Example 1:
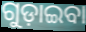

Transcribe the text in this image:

ଗୁଡ଼ାଇବା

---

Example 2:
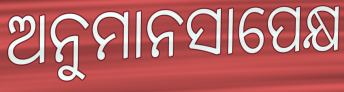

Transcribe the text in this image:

ଅନୁମାନସାପେକ୍ଷ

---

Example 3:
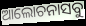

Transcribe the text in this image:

ଆଲୋଚନାସବୁ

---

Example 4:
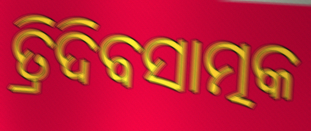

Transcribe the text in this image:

ତ୍ରିଦିବସାତ୍ମକ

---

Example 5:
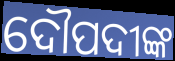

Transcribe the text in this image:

ଦୌପଦୀଙ୍କ